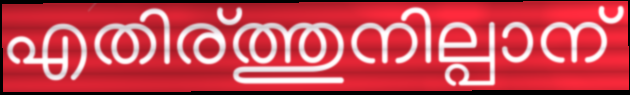
എതിര്ത്തുനില്പാന്